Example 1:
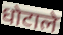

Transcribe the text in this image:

धोटाले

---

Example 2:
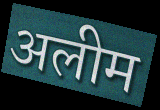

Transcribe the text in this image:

अलीम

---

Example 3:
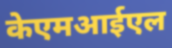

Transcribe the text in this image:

केएमआईएल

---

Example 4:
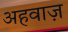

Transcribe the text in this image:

अहवाज़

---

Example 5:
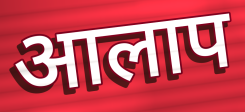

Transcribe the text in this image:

आलाप